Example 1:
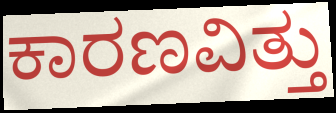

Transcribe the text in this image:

ಕಾರಣವಿತ್ತು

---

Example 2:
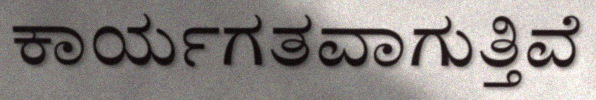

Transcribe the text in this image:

ಕಾರ್ಯಗತವಾಗುತ್ತಿವೆ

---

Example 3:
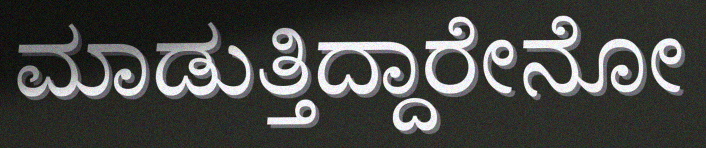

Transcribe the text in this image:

ಮಾಡುತ್ತಿದ್ದಾರೇನೋ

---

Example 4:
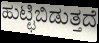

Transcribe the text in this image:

ಹುಟ್ಟಿಬಿಡುತ್ತದೆ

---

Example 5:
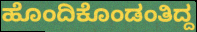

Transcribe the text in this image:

ಹೊಂದಿಕೊಂಡಂತಿದ್ದ